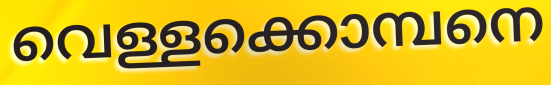
വെള്ളക്കൊമ്പനെ